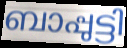
ബാപ്പുട്ടി